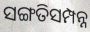
ସଙ୍ଗତିସମ୍ପନ୍ନ